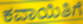
ಕವಾಯಿತಿಗೆ